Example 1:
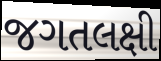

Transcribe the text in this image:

જગતલક્ષી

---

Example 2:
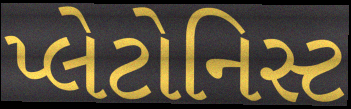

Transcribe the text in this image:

પ્લેટોનિસ્ટ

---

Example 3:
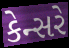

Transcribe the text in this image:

કેન્સરે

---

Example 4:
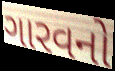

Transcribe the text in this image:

ગારવનો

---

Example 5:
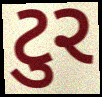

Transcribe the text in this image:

ટુર